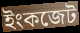
ইংকজেট